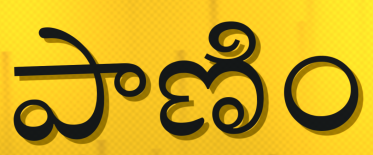
పాణిం